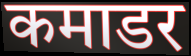
कमाडर